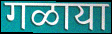
गळाया